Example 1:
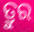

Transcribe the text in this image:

ତ୍ରୁର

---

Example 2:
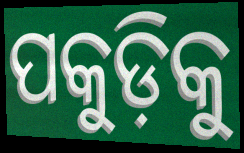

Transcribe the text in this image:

ପକୁଡ଼ିକୁ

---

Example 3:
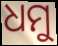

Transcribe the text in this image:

ଧମୁ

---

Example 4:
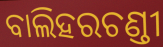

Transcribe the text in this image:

ବାଲିହରଚଣ୍ଡୀ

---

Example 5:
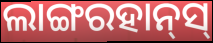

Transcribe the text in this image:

ଲାଙ୍ଗରହାନ୍‌ସ୍